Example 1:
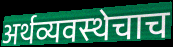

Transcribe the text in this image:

अर्थव्यवस्थेचाच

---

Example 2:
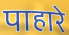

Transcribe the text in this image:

पाहारे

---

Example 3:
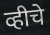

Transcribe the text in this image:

व्हीचे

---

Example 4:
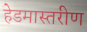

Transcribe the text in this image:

हेडमास्तरीण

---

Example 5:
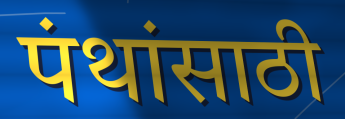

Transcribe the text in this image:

पंथांसाठी